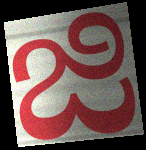
జి